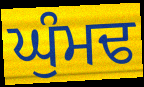
ਘੁੰਮਢ